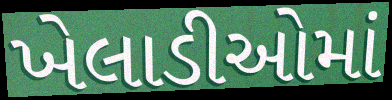
ખેલાડીઓમાં